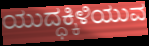
ಯುದ್ಧಕ್ಕಿಳಿಯುವ